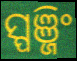
ସ୍ପଞ୍ଜିଂ